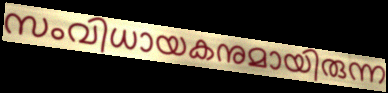
സംവിധായകനുമായിരുന്ന